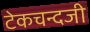
टेकचन्दजी